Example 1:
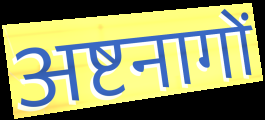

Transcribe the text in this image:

अष्टनागों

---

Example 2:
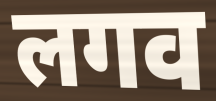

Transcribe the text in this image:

लगव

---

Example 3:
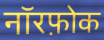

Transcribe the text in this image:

नॉरफ़ोक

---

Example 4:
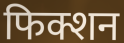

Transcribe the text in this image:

फिक्शन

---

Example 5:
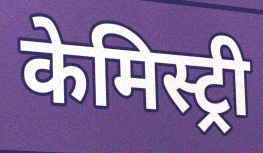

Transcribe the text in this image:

केमिस्ट्री